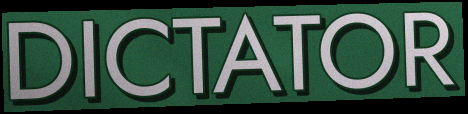
DICTATOR